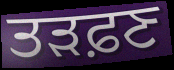
ਤੜਫ਼ਣ